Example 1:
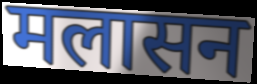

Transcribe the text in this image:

मलासन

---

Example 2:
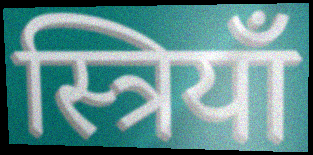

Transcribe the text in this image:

स्त्रियाँ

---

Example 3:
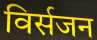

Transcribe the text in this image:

विर्सजन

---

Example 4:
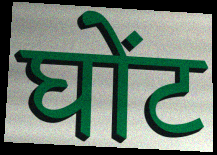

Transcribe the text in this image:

घोंट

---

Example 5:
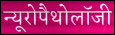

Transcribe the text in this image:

न्यूरोपैथोलॉजी